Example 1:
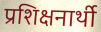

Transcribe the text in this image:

प्रशिक्षनार्थी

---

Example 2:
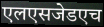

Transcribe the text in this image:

एलएसजेडएच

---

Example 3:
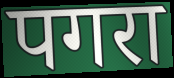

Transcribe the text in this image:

पगरा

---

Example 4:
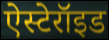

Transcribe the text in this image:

ऐस्टेरॉइड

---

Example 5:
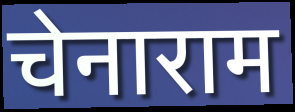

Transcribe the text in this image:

चेनाराम